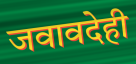
जवावदेही